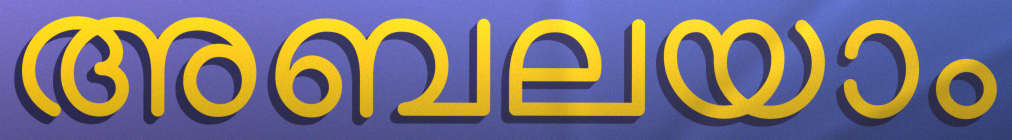
അബലയാം